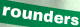
rounders